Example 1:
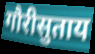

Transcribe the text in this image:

गौरीसुताय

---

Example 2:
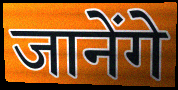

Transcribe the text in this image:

जानेंगे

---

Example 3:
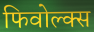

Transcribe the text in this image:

फिवोल्क्स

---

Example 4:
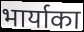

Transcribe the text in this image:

भार्याका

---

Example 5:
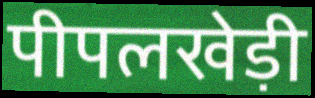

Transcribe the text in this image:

पीपलखेड़ी